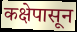
कक्षेपासून